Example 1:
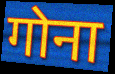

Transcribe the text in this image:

गोना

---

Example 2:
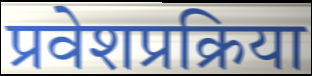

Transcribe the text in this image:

प्रवेशप्रक्रिया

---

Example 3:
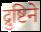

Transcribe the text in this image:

द्रुष्टिने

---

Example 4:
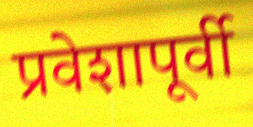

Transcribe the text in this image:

प्रवेशापूर्वी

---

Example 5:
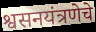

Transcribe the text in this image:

श्वसनयंत्रणेचे